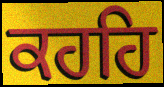
ਕਹਹਿ